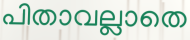
പിതാവല്ലാതെ